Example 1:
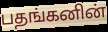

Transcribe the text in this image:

பதங்கனின்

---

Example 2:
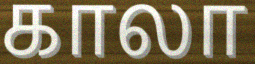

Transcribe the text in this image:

காலா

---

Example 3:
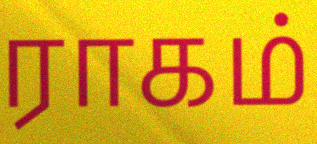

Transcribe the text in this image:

ராகம்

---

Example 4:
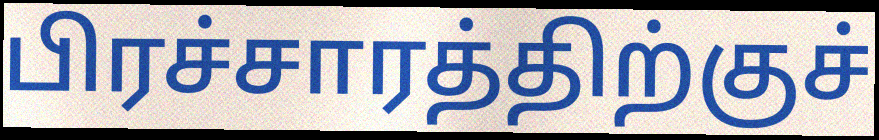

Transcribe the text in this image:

பிரச்சாரத்திற்குச்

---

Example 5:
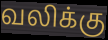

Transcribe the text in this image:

வலிக்கு